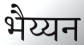
भैय्यन